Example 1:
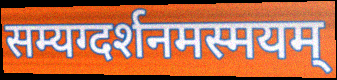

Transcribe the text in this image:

सम्यग्दर्शनमस्मयम्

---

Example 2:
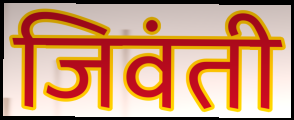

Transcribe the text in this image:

जिवंती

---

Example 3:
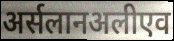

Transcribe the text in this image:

अर्सलानअलीएव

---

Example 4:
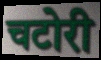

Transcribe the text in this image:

चटोरी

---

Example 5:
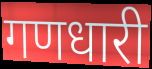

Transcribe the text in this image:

गणधारी